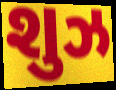
શુઝ